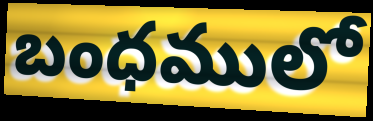
బంధములో